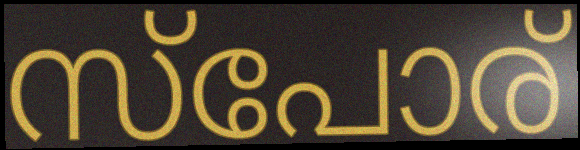
സ്പോര്